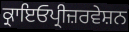
ਕ੍ਰਾਇਓਪ੍ਰੀਜ਼ਰਵੇਸ਼ਨ